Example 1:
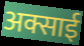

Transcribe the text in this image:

अक्साई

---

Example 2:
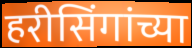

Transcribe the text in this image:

हरीसिंगांच्या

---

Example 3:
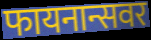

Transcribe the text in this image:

फायनान्सवर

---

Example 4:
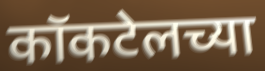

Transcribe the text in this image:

कॉकटेलच्या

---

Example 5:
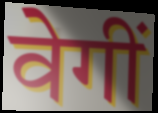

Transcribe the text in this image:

वेगीं